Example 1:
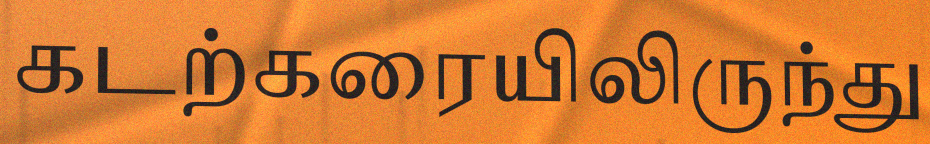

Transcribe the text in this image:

கடற்கரையிலிருந்து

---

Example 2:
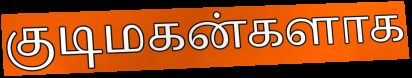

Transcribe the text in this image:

குடிமகன்களாக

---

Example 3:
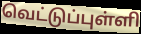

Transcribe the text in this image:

வெட்டுப்புள்ளி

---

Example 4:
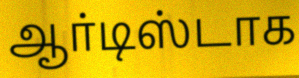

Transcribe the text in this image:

ஆர்டிஸ்டாக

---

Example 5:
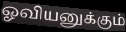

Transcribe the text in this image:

ஓவியனுக்கும்